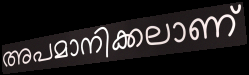
അപമാനിക്കലാണ്